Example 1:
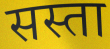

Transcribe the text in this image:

सस्ता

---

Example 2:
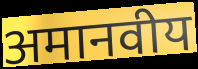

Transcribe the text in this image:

अमानवीय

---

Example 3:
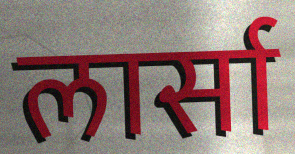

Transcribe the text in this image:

लार्सा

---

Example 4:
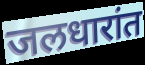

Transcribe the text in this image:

जलधारांत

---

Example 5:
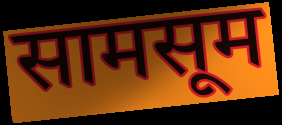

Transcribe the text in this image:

सामसूम